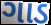
ગાડ